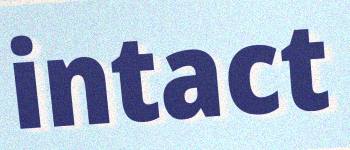
intact